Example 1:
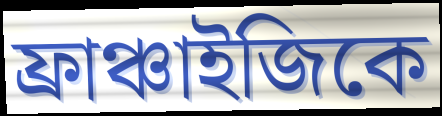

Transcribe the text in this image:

ফ্রাঞ্চাইজিকে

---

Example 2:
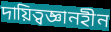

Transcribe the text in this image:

দায়িত্বজ্ঞানহীন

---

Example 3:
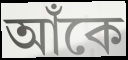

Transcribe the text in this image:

আঁকে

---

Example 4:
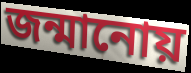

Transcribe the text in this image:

জন্মানোয়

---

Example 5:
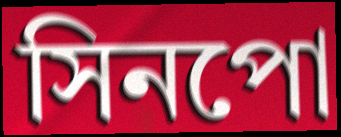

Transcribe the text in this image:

সিনপো